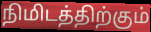
நிமிடத்திற்கும்